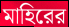
মাহিরের